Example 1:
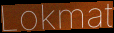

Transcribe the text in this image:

Lokmat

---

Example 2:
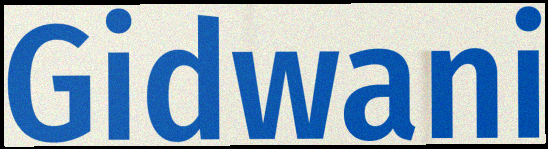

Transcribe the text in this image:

Gidwani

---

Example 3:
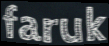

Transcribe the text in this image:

faruk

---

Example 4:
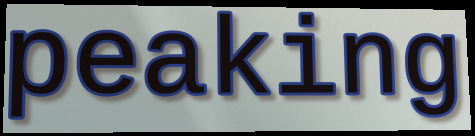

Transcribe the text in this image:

peaking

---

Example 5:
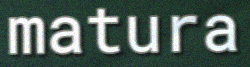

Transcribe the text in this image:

matura